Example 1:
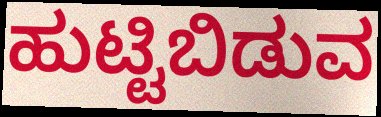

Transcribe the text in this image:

ಹುಟ್ಟಿಬಿಡುವ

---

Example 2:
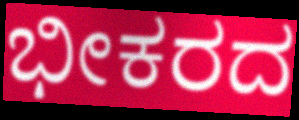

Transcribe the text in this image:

ಭೀಕರದ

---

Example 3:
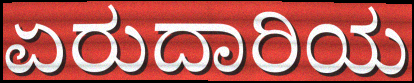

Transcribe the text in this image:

ಏರುದಾರಿಯ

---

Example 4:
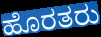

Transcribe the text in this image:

ಹೊರತರು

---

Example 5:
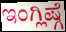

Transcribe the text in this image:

ಇಂಗ್ಲಿಷ್ಗೆ